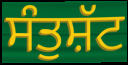
ਸੰਤੁਸ਼ੱਟ